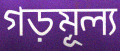
গড়মূল্য